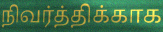
நிவர்த்திக்காக